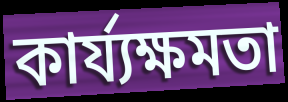
কাৰ্য্যক্ষমতা